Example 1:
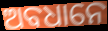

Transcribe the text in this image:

ଅବଧାନେ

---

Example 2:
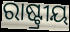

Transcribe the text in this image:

ରାଷ୍ଟ୍ରୀୟ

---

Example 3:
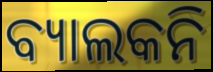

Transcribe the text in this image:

ବ୍ୟାଲକନି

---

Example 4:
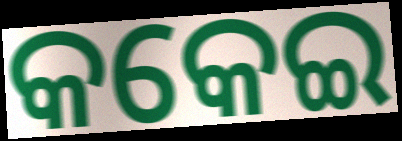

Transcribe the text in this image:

କକେଇ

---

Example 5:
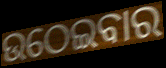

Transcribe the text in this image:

ଉଠେଇବାର